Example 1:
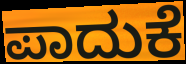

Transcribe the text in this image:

ಪಾದುಕೆ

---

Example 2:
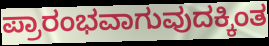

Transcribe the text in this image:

ಪ್ರಾರಂಭವಾಗುವುದಕ್ಕಿಂತ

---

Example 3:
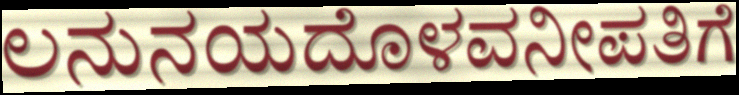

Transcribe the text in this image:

ಲನುನಯದೊಳವನೀಪತಿಗೆ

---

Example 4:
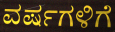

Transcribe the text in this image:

ವರ್ಷಗಳಿಗೆ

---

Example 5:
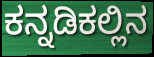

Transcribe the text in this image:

ಕನ್ನಡಿಕಲ್ಲಿನ